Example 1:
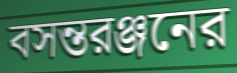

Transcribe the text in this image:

বসন্তরঞ্জনের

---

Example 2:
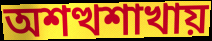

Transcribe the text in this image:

অশত্থশাখায়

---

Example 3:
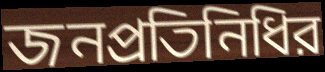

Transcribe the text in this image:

জনপ্রতিনিধির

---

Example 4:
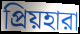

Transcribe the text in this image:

প্রিয়হারা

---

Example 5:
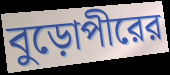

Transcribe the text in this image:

বুড়োপীরের